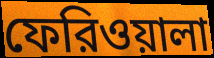
ফেরিওয়ালা